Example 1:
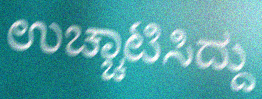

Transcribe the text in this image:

ಉಚ್ಚಾಟಿಸಿದ್ದು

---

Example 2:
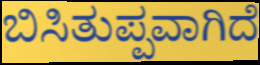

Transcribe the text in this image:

ಬಿಸಿತುಪ್ಪವಾಗಿದೆ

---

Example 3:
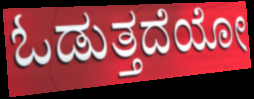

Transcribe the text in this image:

ಓಡುತ್ತದೆಯೋ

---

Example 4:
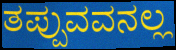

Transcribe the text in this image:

ತಪ್ಪುವವನಲ್ಲ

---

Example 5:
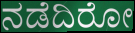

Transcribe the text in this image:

ನಡೆದಿರೋ